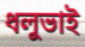
ধলুভাই